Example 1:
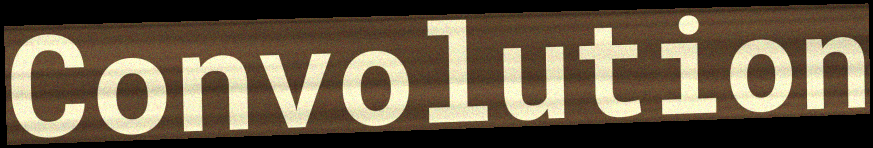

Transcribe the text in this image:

Convolution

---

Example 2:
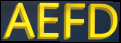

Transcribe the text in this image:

AEFD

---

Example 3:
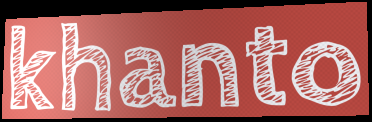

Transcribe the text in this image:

khanto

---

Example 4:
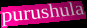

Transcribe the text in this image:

purushula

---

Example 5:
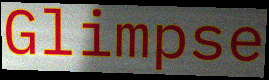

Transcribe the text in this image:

Glimpse